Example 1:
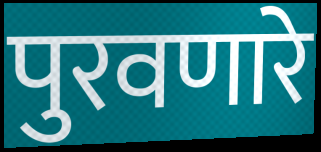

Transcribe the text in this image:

पुरवणारे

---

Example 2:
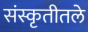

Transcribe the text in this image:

संस्कृतीतले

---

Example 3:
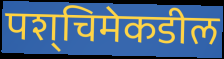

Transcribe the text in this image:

पश्चिमेकडील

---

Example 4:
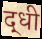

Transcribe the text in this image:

द्धी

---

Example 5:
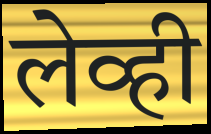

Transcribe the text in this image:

लेव्ही